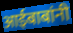
आईबाबांनी